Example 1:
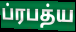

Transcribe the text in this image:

ப்ரபத்ய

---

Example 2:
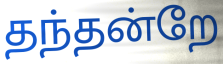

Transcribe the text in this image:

தந்தன்றே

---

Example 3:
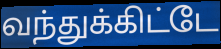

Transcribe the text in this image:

வந்துக்கிட்டே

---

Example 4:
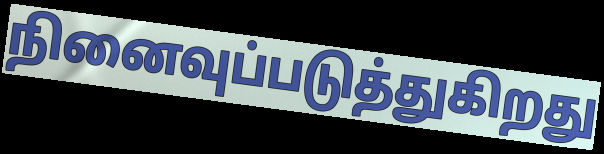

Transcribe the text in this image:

நினைவுப்படுத்துகிறது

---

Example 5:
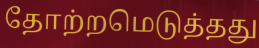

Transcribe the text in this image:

தோற்றமெடுத்தது